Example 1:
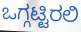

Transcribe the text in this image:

ಒಗ್ಗಟ್ಟಿರಲಿ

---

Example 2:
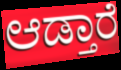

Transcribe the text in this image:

ಆಡ್ತಾರೆ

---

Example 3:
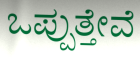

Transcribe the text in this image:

ಒಪ್ಪುತ್ತೇವೆ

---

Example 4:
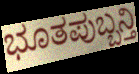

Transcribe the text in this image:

ಭೂತಪುಬ್ಬನ್ತಿ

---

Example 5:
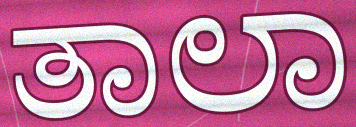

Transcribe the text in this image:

ತಾಲಾ